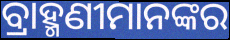
ବ୍ରାହ୍ମଣୀମାନଙ୍କର